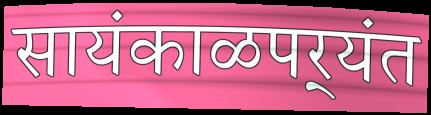
सायंकाळपर्यंत